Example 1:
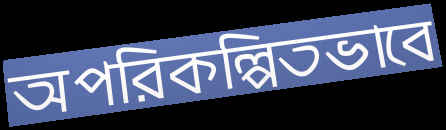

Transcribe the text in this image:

অপরিকল্পিতভাবে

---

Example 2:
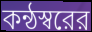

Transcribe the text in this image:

কন্ঠস্বরের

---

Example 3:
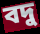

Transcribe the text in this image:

বদু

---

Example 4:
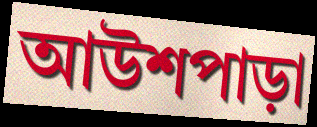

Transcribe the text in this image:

আউশপাড়া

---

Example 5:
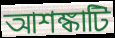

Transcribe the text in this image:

আশঙ্কাটি